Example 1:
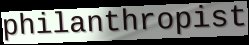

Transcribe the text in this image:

philanthropist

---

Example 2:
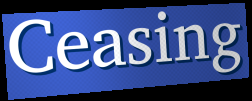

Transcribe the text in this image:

Ceasing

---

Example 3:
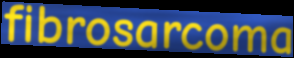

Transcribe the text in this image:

fibrosarcoma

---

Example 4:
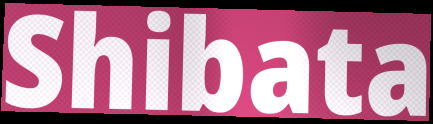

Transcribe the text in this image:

Shibata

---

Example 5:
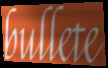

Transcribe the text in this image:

bullete